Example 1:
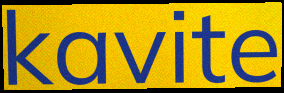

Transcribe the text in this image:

kavite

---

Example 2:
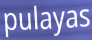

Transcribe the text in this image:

pulayas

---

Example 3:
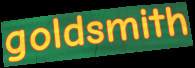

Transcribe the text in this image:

goldsmith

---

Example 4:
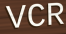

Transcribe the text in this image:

VCR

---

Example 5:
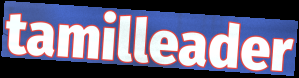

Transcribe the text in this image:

tamilleader